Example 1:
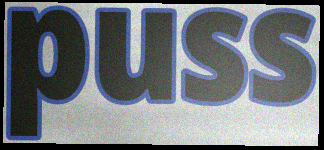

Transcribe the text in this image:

puss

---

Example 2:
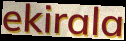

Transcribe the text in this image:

ekirala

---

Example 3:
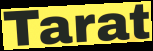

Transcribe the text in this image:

Tarat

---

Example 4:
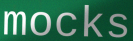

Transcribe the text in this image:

mocks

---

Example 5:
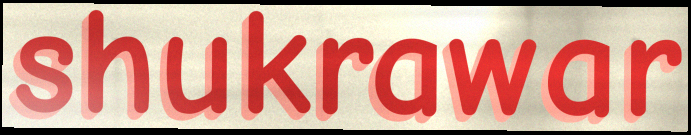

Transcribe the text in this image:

shukrawar